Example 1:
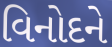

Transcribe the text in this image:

વિનોદને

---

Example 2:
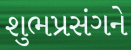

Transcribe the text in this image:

શુભપ્રસંગને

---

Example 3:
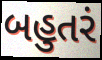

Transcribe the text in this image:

બહુતરં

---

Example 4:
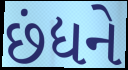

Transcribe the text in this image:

છંદ્યને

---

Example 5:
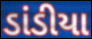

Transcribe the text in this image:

ડાંડીયા